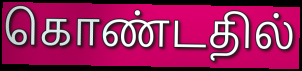
கொண்டதில்